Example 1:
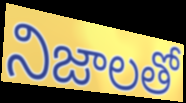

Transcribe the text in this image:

నిజాలతో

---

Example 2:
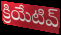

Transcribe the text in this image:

క్రియేటివ్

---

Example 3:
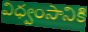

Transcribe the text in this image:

విధ్వంసానికి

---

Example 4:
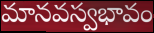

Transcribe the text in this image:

మానవస్వభావం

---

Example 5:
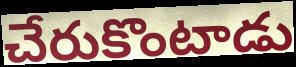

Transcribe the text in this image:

చేరుకొంటాడు